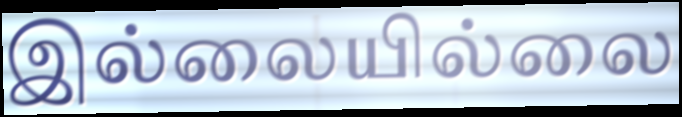
இல்லையில்லை